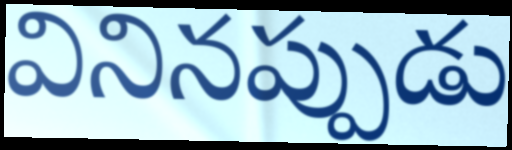
వినినప్పుడు